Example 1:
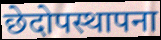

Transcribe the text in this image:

छेदोपस्थापना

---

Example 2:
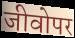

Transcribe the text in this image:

जीवोपर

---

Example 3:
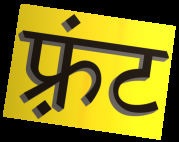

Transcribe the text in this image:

फ़्रंट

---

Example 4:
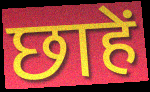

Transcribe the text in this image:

छाहें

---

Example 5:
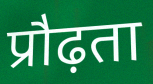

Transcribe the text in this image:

प्रौढ़ता